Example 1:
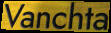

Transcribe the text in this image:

Vanchta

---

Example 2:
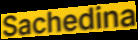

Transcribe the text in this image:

Sachedina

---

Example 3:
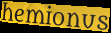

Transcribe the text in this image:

hemionus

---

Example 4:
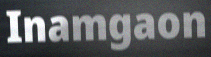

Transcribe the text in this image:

Inamgaon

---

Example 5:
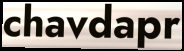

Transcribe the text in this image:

chavdapr